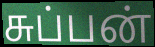
சுப்பன்